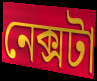
নেক্সটা